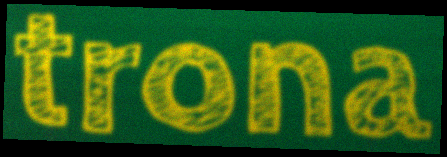
trona